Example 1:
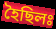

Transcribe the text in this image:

হৈছিলঃ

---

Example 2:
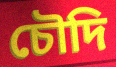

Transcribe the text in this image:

চৌদি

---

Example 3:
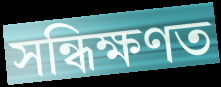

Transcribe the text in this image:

সন্ধিক্ষণত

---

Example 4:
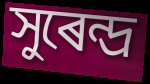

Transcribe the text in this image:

সুৰেন্দ্ৰ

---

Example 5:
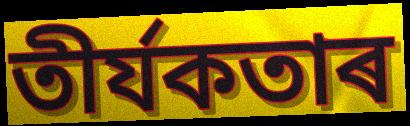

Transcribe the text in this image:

তীৰ্যকতাৰ